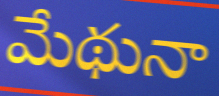
మేథునా